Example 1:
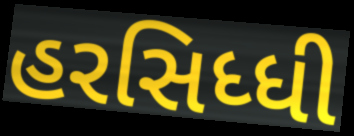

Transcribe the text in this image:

હરસિધ્ધી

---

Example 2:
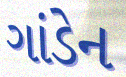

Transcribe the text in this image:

ગાંડેન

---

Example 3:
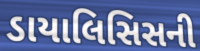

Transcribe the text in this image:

ડાયાલિસિસની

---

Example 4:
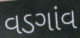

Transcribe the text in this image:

વડગાંવ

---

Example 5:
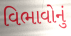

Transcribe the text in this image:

વિભાવોનું